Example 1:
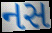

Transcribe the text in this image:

નસ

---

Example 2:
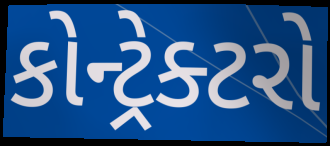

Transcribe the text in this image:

કોન્ટ્રેક્ટરો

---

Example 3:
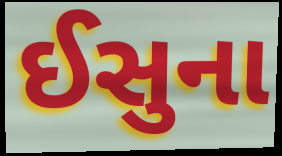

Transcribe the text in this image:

ઈસુના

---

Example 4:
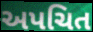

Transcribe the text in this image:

અપચિત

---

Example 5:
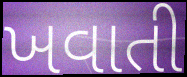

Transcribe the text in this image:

ખવાતી